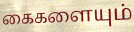
கைகளையும்